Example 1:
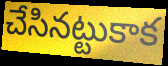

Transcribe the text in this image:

చేసినట్టుకాక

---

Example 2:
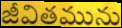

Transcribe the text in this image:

జీవితమును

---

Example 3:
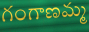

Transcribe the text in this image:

గంగాణమ్మ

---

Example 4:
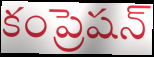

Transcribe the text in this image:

కంప్రెషన్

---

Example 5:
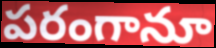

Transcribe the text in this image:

పరంగానూ